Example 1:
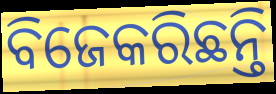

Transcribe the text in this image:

ବିଜେକରିଛନ୍ତି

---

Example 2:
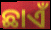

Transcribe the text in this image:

ଛାଏଁ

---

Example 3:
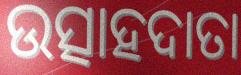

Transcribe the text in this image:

ଉତ୍ସାହଦାତା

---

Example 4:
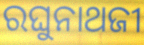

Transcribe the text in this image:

ରଘୁନାଥଜୀ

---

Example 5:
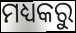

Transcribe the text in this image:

ମଧ୍ୟକରୁ